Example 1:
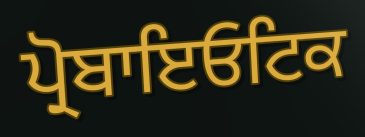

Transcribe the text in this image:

ਪ੍ਰੋਬਾਇਓਟਿਕ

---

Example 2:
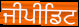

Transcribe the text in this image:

ਜੀਪੀਡਿਟ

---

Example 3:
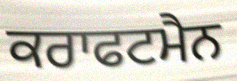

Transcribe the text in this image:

ਕਰਾਫਟਮੈਨ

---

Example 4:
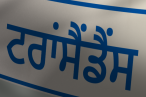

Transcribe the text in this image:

ਟਰਾਂਸੈਂਡੈਂਸ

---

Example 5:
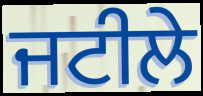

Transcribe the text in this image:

ਜਟੀਲੇ